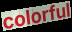
colorful